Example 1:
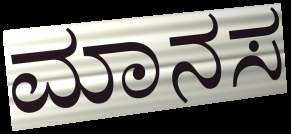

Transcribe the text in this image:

ಮಾನಸ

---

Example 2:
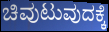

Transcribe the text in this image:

ಚಿವುಟುವುದಕ್ಕೆ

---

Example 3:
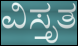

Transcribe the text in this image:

ವಿಸ್ತೃತ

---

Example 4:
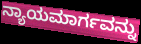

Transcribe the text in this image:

ನ್ಯಾಯಮಾರ್ಗವನ್ನು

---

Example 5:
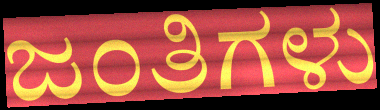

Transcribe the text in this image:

ಜಂತಿಗಳು